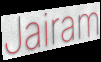
Jairam